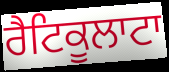
ਰੈਟਿਕੂਲਾਟਾ